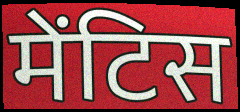
मेंटिस